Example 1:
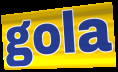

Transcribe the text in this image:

gola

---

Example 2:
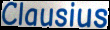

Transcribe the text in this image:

Clausius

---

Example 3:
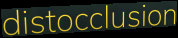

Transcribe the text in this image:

distocclusion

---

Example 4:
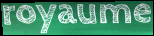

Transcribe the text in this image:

royaume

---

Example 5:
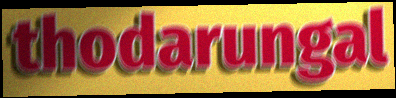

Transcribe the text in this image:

thodarungal